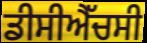
ਡੀਸੀਐੱਚਸੀ